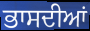
ਭਾਸਦੀਆਂ